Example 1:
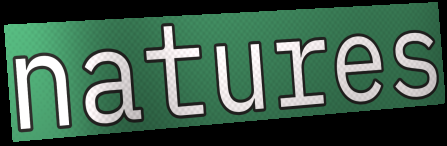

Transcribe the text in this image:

natures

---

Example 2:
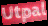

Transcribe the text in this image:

Utpal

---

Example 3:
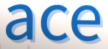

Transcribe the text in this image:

ace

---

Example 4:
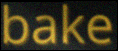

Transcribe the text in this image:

bake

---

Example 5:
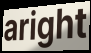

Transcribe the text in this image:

aright